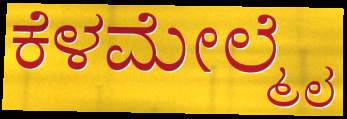
ಕೆಳಮೇಲ್ಮೈ